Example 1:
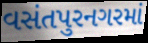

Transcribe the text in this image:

વસંતપુરનગરમાં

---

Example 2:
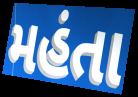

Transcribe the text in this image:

મહંતા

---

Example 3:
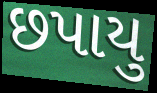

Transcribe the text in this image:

છપાયુ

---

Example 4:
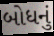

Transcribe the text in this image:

બોધનું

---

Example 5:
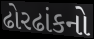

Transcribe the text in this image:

ઢોરઢાંકનો